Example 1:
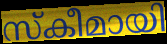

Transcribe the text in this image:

സ്കീമായി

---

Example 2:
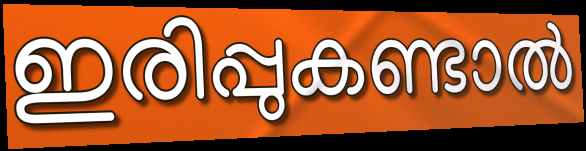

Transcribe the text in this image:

ഇരിപ്പുകണ്ടാൽ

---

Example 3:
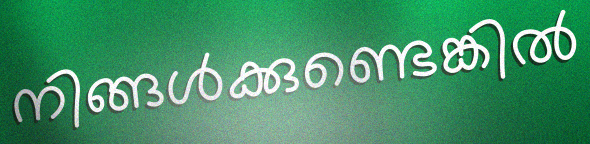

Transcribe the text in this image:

നിങ്ങൾക്കുണ്ടെങ്കിൽ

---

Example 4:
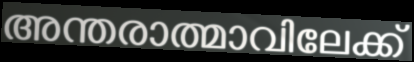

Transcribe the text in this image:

അന്തരാത്മാവിലേക്ക്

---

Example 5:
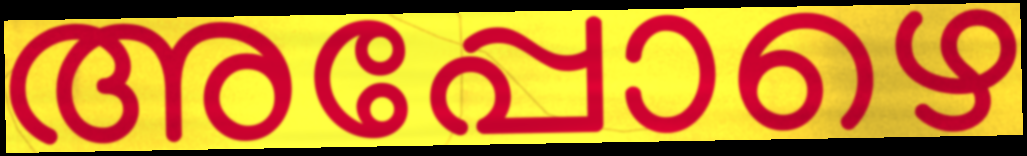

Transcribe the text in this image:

അപ്പോഴെ